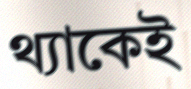
থ্যাকেই